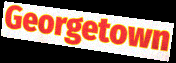
Georgetown